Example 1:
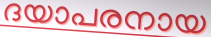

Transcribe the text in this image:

ദയാപരനായ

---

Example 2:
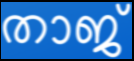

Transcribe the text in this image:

താജ്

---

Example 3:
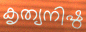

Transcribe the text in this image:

കൃത്യനിഷ്ഠ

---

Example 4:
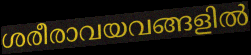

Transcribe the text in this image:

ശരീരാവയവങ്ങളിൽ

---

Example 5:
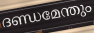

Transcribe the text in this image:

ദണ്ഡമേന്തും